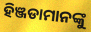
ହିଞ୍ଜଡାମାନଙ୍କୁ